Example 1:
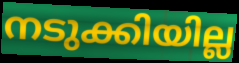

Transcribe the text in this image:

നടുക്കിയില്ല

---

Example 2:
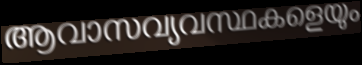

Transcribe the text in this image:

ആവാസവ്യവസ്ഥകളെയും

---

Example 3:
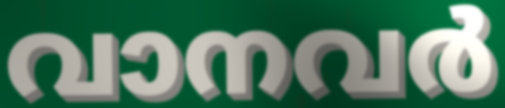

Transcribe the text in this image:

വാനവർ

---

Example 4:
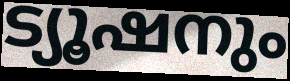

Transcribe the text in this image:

ട്യൂഷനും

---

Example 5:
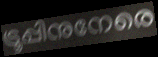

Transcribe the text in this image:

ട്രൂപ്പിനുനേരെ